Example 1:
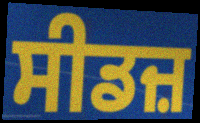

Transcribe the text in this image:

ਸੀਡਜ਼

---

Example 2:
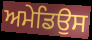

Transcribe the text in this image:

ਅਮੇਡਿਉਸ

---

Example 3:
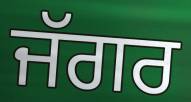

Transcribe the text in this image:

ਜੱਗਰ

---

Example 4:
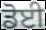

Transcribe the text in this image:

ਡੋਈ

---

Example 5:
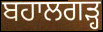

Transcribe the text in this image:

ਬਹਾਲਗੜ੍ਹ